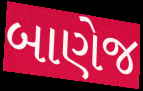
બાણેજ